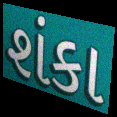
શંકા